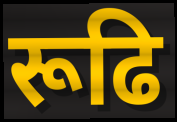
रूढि